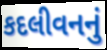
કદલીવનનું